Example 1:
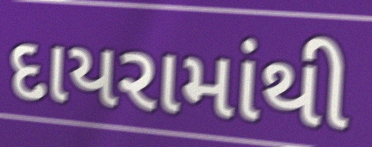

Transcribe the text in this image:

દાયરામાંથી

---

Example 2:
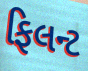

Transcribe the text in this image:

ફિલન્ટ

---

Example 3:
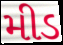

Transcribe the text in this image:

મીડ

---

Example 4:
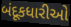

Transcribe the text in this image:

બંદૂકધારીઓ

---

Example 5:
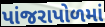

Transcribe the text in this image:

પાંજરાપોળમાં